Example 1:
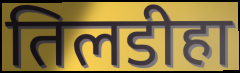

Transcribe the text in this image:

तिलडीहा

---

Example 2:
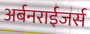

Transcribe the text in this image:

अर्बनराईजर्स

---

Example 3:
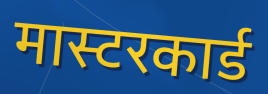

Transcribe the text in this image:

मास्टरकार्ड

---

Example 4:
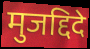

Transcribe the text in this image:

मुजद्दिदे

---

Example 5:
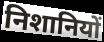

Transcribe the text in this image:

निशानियों